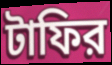
টাফির